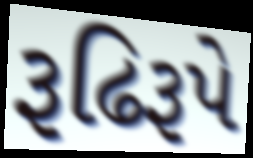
રૂઢિરૂપે